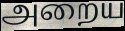
அறைய